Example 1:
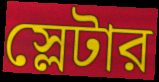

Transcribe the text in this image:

স্লেটার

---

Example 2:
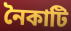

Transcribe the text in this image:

নৈকাটি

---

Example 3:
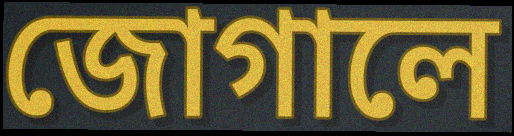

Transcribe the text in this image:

জোগালে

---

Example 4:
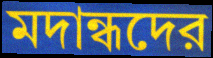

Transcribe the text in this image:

মদান্ধদের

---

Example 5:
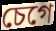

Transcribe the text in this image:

চেগে